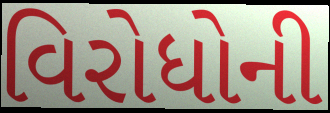
વિરોધોની